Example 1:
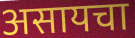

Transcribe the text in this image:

असायचा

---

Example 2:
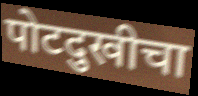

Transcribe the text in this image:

पोटदुखीचा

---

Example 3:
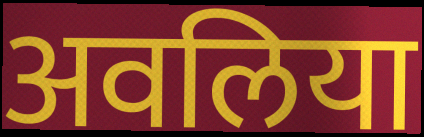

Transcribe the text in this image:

अवलिया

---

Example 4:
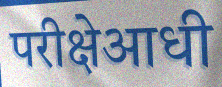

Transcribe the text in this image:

परीक्षेआधी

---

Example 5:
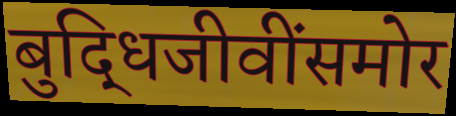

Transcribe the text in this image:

बुद्धिजीवींसमोर